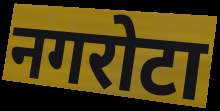
नगरोटा